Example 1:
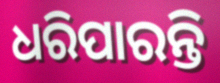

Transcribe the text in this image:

ଧରିପାରନ୍ତି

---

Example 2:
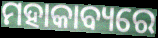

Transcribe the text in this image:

ମହାକାବ୍ୟରେ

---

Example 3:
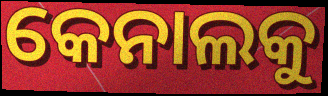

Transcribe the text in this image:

କେନାଲକୁ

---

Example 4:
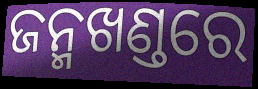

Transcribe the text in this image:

ଜନ୍ମଖଣ୍ଡରେ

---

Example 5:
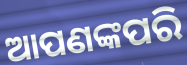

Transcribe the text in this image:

ଆପଣଙ୍କପରି